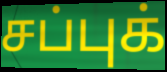
சப்புக்